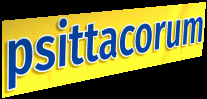
psittacorum